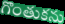
గొంతుకను